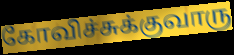
கோவிச்சுக்குவாரு